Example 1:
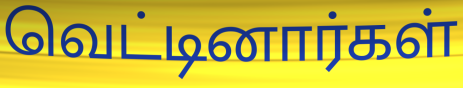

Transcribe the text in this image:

வெட்டினார்கள்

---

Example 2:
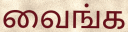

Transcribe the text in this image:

வைங்க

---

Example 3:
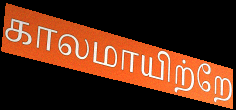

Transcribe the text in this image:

காலமாயிற்றே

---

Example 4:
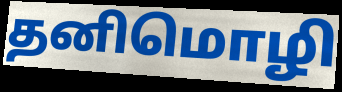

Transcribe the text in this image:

தனிமொழி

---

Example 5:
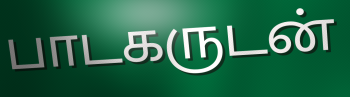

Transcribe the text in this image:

பாடகருடன்